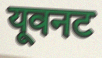
यूवनट